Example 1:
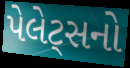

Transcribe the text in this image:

પેલેટ્સનો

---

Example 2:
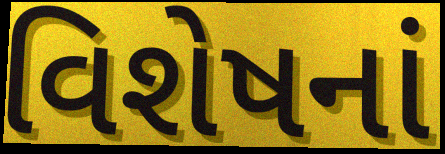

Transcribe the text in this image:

વિશેષનાં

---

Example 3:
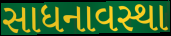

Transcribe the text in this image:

સાધનાવસ્થા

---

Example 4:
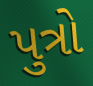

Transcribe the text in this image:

પુત્રો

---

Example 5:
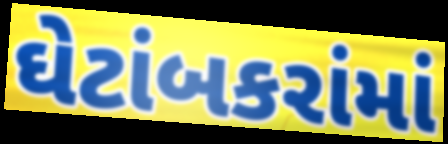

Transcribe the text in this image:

ઘેટાંબકરાંમાં